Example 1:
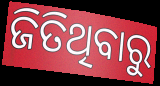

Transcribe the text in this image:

ଜିତିଥିବାରୁ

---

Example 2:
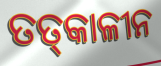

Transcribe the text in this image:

ତତ୍‌କାଳୀନ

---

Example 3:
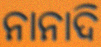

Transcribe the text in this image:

ନାନାଦି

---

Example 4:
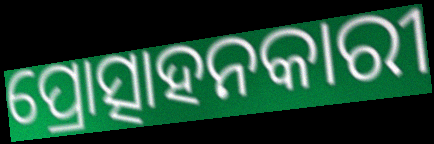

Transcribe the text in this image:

ପ୍ରୋତ୍ସାହନକାରୀ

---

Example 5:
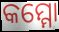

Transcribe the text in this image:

କମ୍ମୋ